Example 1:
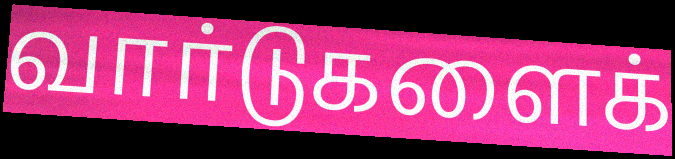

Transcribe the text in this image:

வார்டுகளைக்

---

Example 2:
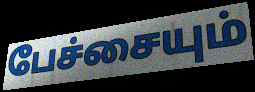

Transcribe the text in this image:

பேச்சையும்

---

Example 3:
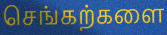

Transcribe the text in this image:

செங்கற்களை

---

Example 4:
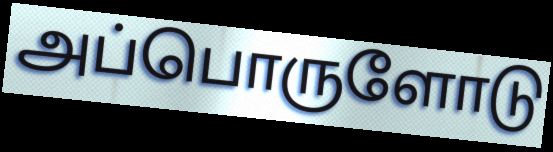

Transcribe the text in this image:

அப்பொருளோடு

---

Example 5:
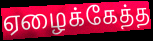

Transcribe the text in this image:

ஏழைக்கேத்த